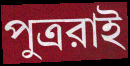
পুত্ররাই